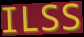
ILSS